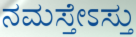
ನಮಸ್ತೇಽಸ್ತು